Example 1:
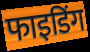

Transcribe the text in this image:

फाइडिंग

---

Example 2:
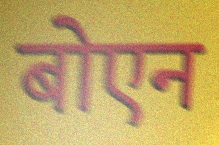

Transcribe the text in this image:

बोएन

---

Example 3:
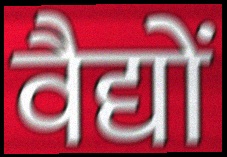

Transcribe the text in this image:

वैद्यों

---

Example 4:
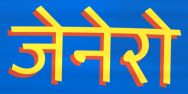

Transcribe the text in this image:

जेनेरो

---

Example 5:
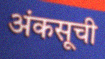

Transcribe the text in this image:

अंकसूची